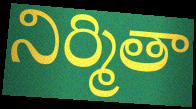
నిర్మితా